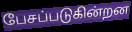
பேசப்படுகின்றன